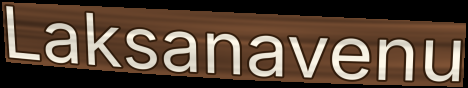
Laksanavenu